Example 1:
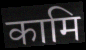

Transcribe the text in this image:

कामि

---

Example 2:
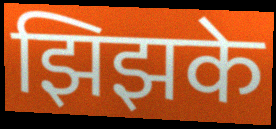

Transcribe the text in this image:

झिझके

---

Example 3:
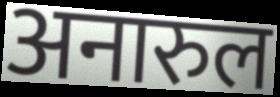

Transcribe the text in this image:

अनारुल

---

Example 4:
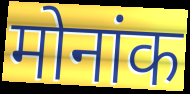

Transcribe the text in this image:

मोनांक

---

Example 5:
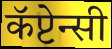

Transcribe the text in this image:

कॅप्टेन्सी